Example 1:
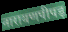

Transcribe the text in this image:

नारायणपीपड़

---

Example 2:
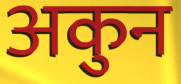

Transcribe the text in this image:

अकुन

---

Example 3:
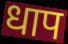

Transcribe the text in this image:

धाप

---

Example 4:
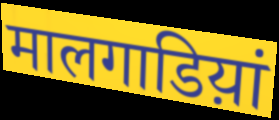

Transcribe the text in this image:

मालगाडिय़ां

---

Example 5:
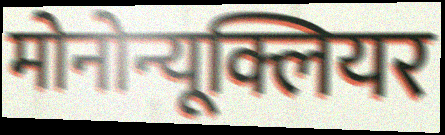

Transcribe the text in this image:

मोनोन्यूक्लियर